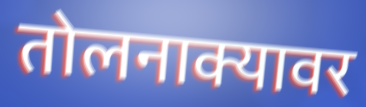
तोलनाक्यावर